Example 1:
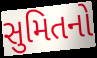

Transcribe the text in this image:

સુમિતનો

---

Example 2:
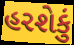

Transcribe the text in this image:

હરશેકું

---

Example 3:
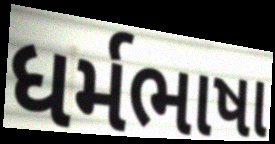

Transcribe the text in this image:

ધર્મભાષા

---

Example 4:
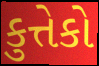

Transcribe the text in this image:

કુત્તેકો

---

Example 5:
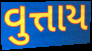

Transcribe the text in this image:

વુત્તાય